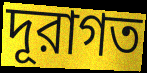
দূরাগত